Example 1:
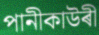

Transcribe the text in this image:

পানীকাউৰী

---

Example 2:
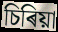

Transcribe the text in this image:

চিৰিয়া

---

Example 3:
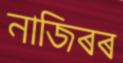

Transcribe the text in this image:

নাজিৰৰ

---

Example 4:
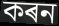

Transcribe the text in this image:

কৰন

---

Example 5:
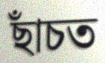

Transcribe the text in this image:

ছাঁচত